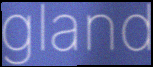
gland